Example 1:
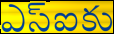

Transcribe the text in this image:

ఎస్ఐకు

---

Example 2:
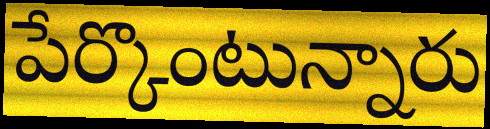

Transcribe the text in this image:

పేర్కొంటున్నారు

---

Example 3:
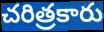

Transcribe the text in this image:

చరిత్రకారు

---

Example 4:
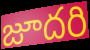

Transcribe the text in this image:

జూదరి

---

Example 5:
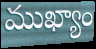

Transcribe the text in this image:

ముఖ్యాం